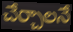
చేర్చాలనే